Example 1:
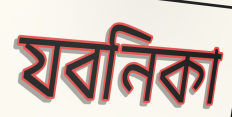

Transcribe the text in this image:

যবনিকা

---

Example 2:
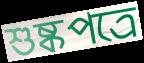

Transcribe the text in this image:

শুষ্কপত্রে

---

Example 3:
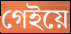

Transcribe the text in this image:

গেইয়ে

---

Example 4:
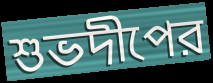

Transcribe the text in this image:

শুভদীপের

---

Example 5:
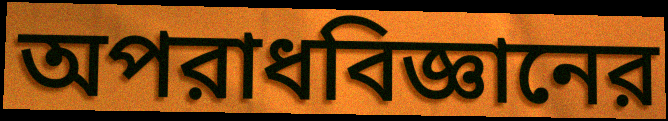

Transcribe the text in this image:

অপরাধবিজ্ঞানের